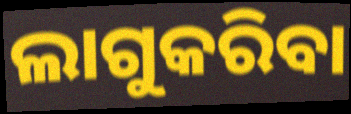
ଲାଗୁକରିବା